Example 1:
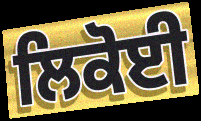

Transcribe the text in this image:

ਲਿਕੋਈ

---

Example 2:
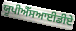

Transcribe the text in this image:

ਯੂਪੀਐੱਸਆਈਡੀਏ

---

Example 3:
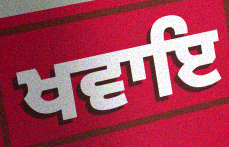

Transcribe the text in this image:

ਖਵਾਇ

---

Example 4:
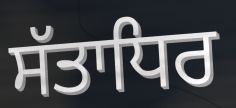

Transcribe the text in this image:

ਸੱਤਾਧਿਰ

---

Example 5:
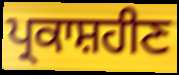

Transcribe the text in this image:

ਪ੍ਰਕਾਸ਼ਹੀਣ